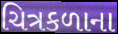
ચિત્રકળાના